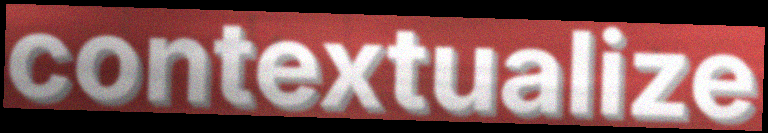
contextualize